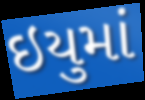
ઇયુમાં